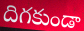
దిగకుండా